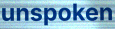
unspoken